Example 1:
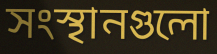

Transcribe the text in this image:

সংস্থানগুলো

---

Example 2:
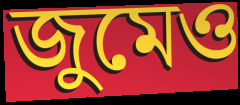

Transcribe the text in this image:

জুমেও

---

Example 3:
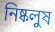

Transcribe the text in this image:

নিষ্কলুষ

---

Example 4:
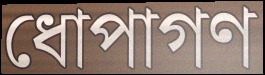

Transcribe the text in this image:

ধোপাগণ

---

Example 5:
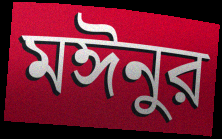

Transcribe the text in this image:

মঈনুর